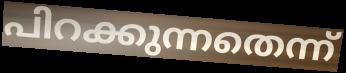
പിറക്കുന്നതെന്ന്